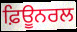
ਫ਼ਿਊਨਰਲ